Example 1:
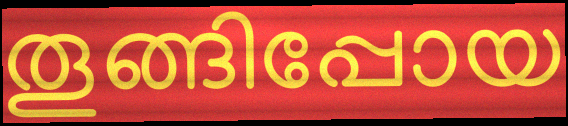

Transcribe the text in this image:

തൂങ്ങിപ്പോയ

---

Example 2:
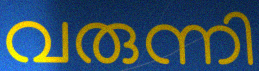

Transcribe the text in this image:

വരുന്നി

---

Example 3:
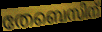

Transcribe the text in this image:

തേബെസിന്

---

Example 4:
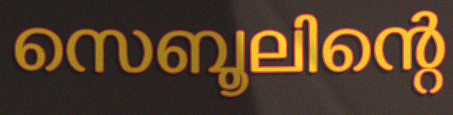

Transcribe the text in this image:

സെബൂലിന്റെ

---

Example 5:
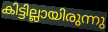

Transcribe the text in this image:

കിട്ടില്ലായിരുന്നു